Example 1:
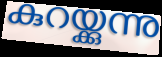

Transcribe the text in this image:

കുറയ്ക്കുന്നു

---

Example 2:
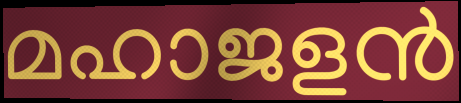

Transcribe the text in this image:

മഹാജളൻ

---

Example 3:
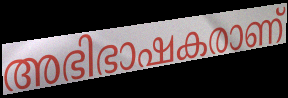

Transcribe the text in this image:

അഭിഭാഷകരാണ്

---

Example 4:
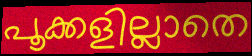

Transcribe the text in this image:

പൂക്കളില്ലാതെ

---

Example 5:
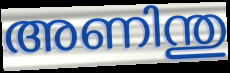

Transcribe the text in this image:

അണിന്തു